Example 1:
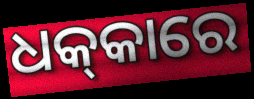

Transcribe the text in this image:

ଧକ୍‍କାରେ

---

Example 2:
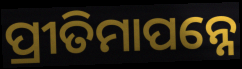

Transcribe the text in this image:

ପ୍ରୀତିମାପନ୍ନେ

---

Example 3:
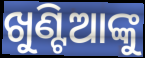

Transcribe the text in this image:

ଖୁଣ୍ଟିଆଙ୍କୁ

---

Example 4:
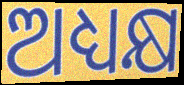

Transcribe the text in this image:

ଅଧ୍ୟକ୍ଷ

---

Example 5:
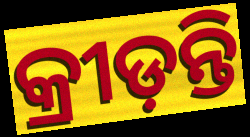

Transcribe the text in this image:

କ୍ରୀଡ଼ନ୍ତି